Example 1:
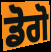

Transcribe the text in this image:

ਡੋਗੋ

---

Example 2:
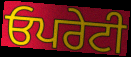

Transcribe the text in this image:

ਓਪਰੇਟੀ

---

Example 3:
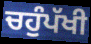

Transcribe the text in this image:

ਚਹੁੰਪੱਖੀ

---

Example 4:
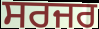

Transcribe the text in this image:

ਸਰਜਰ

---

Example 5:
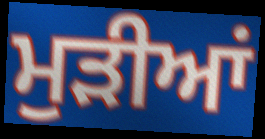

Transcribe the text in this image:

ਮੁੜੀਆਂ